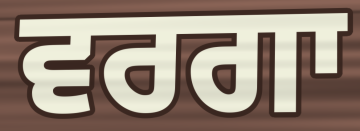
ਵਰਗਾ